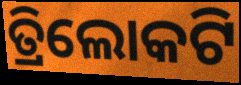
ତ୍ରିଲୋକଟି